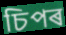
চিপৰ